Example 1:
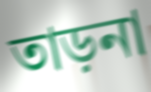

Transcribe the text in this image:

তাড়না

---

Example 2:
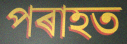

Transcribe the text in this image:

পৰাহত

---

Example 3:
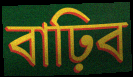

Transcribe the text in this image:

বাঢ়িব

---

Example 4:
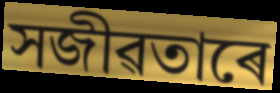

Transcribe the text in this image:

সজীৱতাৰে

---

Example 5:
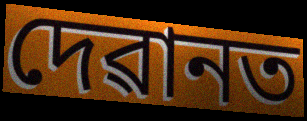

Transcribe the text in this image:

দেৱানত